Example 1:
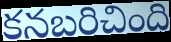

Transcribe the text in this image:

కనబరిచింది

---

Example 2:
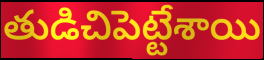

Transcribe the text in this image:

తుడిచిపెట్టేశాయి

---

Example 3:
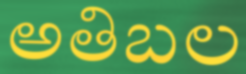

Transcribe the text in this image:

అతిబల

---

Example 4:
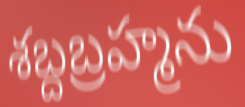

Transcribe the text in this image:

శబ్దబ్రహ్మను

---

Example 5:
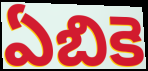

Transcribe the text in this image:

ఏబికె